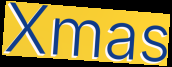
Xmas